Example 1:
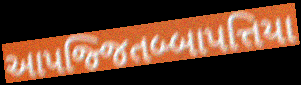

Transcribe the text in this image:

આપજ્જિતબ્બાપત્તિયા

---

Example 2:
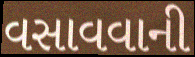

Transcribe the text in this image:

વસાવવાની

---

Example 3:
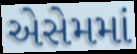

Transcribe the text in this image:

એસેમમાં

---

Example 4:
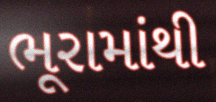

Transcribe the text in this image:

ભૂરામાંથી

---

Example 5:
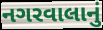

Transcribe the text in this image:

નગરવાલાનું